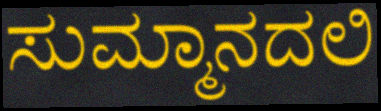
ಸುಮ್ಮಾನದಲಿ